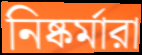
নিষ্কর্মারা